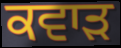
ਕਵਾੜ